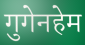
गुगेनहेम